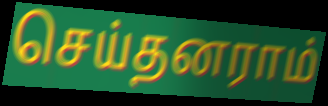
செய்தனராம்